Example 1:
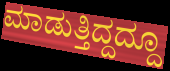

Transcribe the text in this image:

ಮಾಡುತ್ತಿದ್ದದ್ದೂ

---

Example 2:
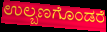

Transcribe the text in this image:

ಉಲ್ಬಣಗೊಂಡರೆ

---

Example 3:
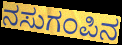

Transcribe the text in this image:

ನಸುಗಂಪಿನ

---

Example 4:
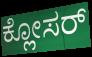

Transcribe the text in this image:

ಕ್ಲೋಸರ್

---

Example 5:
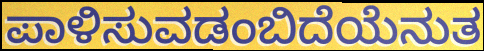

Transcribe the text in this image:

ಪಾಳಿಸುವಡಂಬಿದೆಯೆನುತ